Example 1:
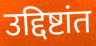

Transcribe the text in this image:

उद्दिष्टांत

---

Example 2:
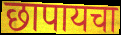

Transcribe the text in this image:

छापायचा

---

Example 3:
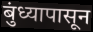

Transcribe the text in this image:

बुंध्यापासून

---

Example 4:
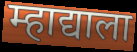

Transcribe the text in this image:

म्हाद्याला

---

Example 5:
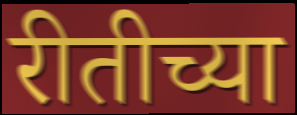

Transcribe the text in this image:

रीतीच्या